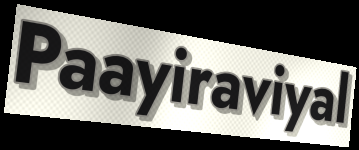
Paayiraviyal